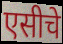
एसीचे